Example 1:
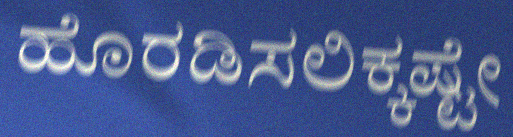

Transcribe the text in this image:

ಹೊರಡಿಸಲಿಕ್ಕಷ್ಟೇ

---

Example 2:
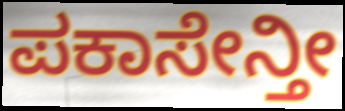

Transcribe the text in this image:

ಪಕಾಸೇನ್ತೀ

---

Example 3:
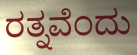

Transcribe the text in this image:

ರತ್ನವೆಂದು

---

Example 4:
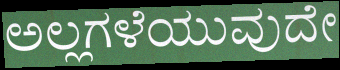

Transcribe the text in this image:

ಅಲ್ಲಗಳೆಯುವುದೇ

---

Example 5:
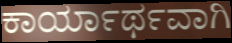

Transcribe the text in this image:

ಕಾರ್ಯಾರ್ಥವಾಗಿ